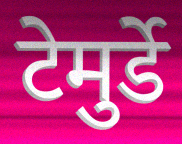
टेमुर्डे